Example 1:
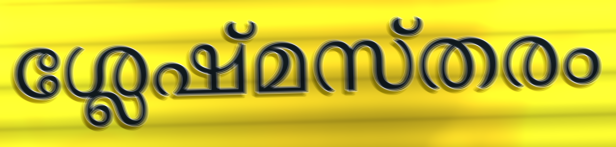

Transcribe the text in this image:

ശ്ലേഷ്മസ്തരം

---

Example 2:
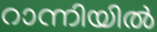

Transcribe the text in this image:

റാന്നിയിൽ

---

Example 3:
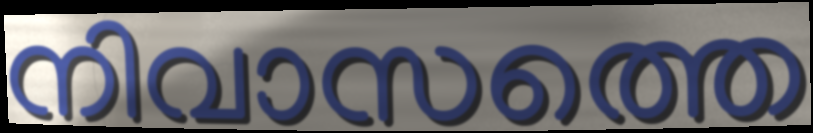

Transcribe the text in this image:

നിവാസത്തെ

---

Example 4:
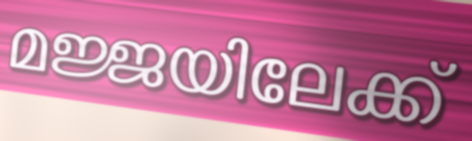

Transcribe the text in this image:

മജ്ജയിലേക്ക്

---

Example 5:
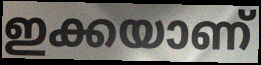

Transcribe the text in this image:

ഇക്കയാണ്